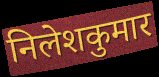
निलेशकुमार